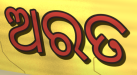
ଅରତ